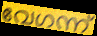
വേഗന്ന്